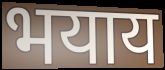
भयाय